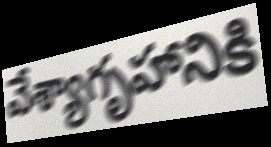
వేశ్యాగృహానికి